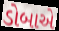
ડોબાએ